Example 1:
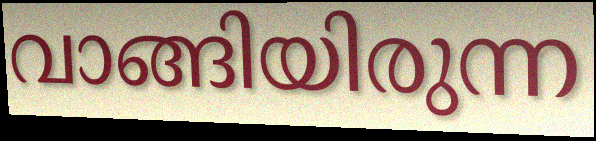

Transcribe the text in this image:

വാങ്ങിയിരുന്ന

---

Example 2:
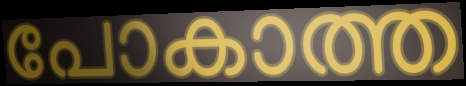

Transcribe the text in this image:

പോകാത്ത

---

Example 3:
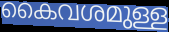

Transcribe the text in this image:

കൈവശമുള്ള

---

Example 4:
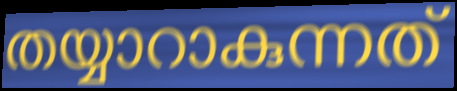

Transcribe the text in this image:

തയ്യാറാകുന്നത്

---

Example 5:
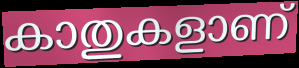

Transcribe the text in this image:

കാതുകളാണ്